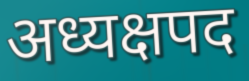
अध्यक्षपद